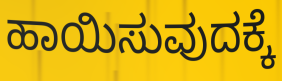
ಹಾಯಿಸುವುದಕ್ಕೆ